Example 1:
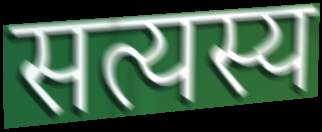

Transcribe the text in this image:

सत्यस्य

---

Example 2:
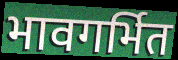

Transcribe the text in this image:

भावगर्भित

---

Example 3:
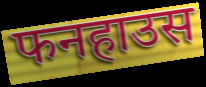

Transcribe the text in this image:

फनहाउस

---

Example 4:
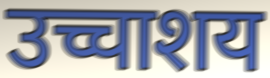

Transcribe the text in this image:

उच्चाशय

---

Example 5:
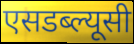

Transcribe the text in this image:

एसडब्ल्यूसी